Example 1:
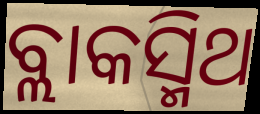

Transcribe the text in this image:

ବ୍ଲାକସ୍ମିଥ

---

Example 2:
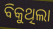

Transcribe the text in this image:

ବିକୁଥିଲା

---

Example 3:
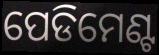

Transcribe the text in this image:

ପେଡିମେଣ୍ଟ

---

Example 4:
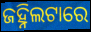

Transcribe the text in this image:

ଜହ୍ନିଲଟାରେ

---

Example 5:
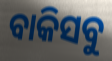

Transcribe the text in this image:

ବାକିସବୁ